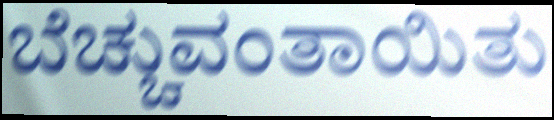
ಬೆಚ್ಚುವಂತಾಯಿತು